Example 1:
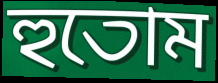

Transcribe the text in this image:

হুতোম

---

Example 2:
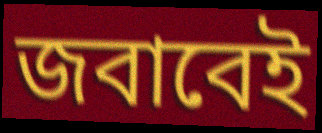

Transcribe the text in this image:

জবাবেই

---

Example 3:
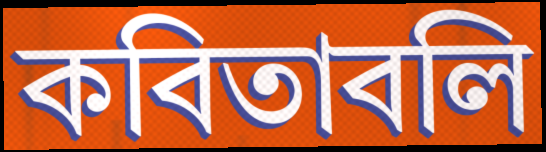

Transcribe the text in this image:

কবিতাবলি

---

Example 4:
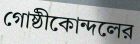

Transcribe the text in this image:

গোষ্ঠীকোন্দলের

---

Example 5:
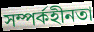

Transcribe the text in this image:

সম্পর্কহীনতা